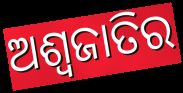
ଅଶ୍ୱଜାତିର